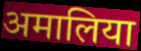
अमालिया